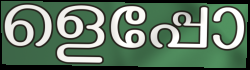
ളെപ്പോ